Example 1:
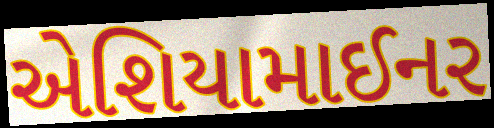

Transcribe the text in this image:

એશિયામાઈનર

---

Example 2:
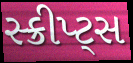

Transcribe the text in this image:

સ્ક્રીપ્ટ્સ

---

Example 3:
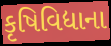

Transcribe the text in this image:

કૃષિવિદ્યાના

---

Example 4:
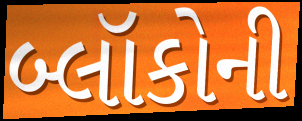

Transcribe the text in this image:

બ્લૉકોની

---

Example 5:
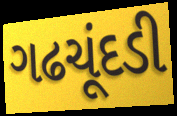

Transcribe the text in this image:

ગઢચૂંદડી